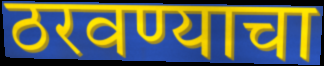
ठरवण्याचा